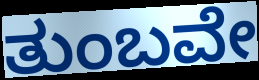
ತುಂಬವೇ